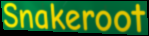
Snakeroot